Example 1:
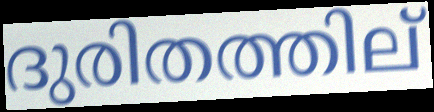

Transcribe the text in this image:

ദുരിതത്തില്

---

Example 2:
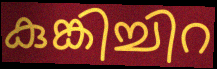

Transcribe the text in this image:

കുങ്കിച്ചിറ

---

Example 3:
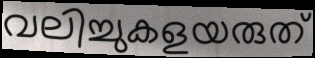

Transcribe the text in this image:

വലിച്ചുകളയരുത്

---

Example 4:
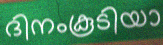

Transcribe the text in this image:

ദിനംകൂടിയാ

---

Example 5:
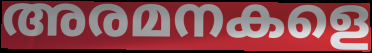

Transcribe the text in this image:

അരമനകളെ